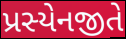
પ્રસ્યેનજીતે